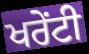
ਖਰੇਂਟੀ